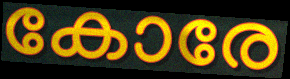
കോരേ